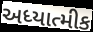
અધ્યાત્મીક